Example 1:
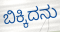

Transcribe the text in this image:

ಬಿಕ್ಕಿದನು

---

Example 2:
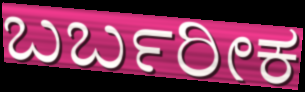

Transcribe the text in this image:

ಬರ್ಬರೀಕ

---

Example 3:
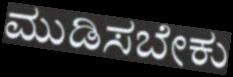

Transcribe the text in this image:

ಮುಡಿಸಬೇಕು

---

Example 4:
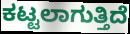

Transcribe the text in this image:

ಕಟ್ಟಲಾಗುತ್ತಿದೆ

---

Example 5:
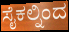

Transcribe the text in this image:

ಸೈಕಲ್ನಿಂದ